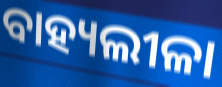
ବାହ୍ୟଲୀଳା